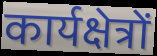
कार्यक्षेत्रों